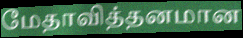
மேதாவித்தனமான